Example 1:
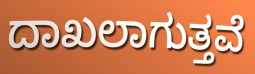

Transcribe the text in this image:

ದಾಖಲಾಗುತ್ತವೆ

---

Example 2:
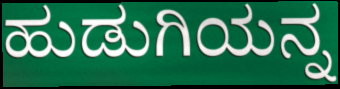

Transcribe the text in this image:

ಹುಡುಗಿಯನ್ನ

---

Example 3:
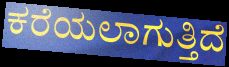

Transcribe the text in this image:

ಕರೆಯಲಾಗುತ್ತಿದೆ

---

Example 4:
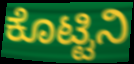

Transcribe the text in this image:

ಕೊಟ್ಟಿನಿ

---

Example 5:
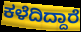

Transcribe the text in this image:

ಕಳೆದಿದ್ದಾರೆ